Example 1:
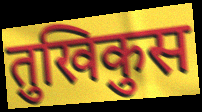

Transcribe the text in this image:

तुखिकुस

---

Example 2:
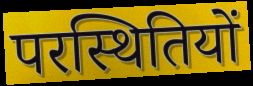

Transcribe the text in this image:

परस्थितियों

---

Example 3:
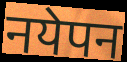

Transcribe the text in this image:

नयेपन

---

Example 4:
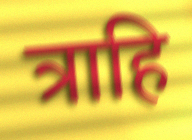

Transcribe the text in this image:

त्राहि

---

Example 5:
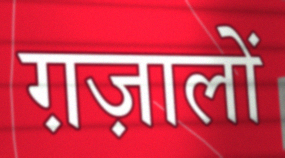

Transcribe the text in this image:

ग़ज़ालों